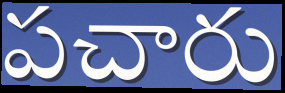
పచారు